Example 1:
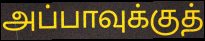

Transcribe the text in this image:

அப்பாவுக்குத்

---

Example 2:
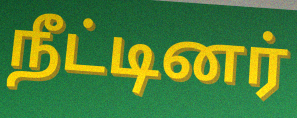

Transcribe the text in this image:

நீட்டினர்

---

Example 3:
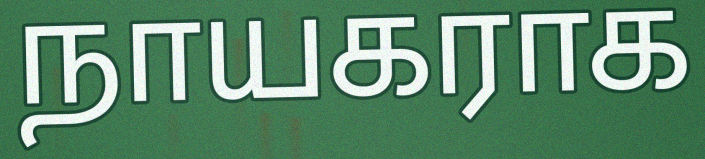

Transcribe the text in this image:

நாயகராக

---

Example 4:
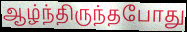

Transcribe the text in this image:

ஆழ்ந்திருந்தபோது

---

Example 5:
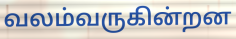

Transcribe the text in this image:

வலம்வருகின்றன